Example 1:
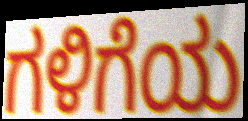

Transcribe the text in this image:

ಗಳಿಗೆಯ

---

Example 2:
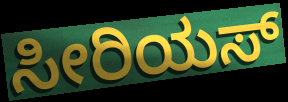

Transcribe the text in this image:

ಸೀರಿಯಸ್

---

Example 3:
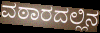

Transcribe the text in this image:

ವಠಾರದಲ್ಲಿನ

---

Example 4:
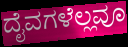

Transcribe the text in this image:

ದೈವಗಳೆಲ್ಲವೂ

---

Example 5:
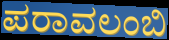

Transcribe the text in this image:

ಪರಾವಲಂಬಿ